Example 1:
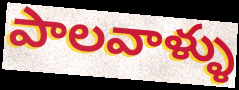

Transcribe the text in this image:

పాలవాళ్ళు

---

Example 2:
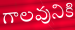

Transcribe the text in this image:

గాలవునికి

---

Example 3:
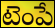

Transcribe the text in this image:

టెంపే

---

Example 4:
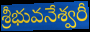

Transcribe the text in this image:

శ్రీభువనేశ్వరీ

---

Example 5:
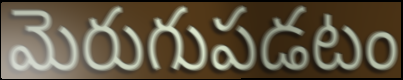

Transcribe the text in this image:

మెరుగుపడటం